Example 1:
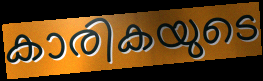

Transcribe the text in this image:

കാരികയുടെ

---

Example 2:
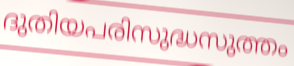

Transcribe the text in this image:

ദുതിയപരിസുദ്ധസുത്തം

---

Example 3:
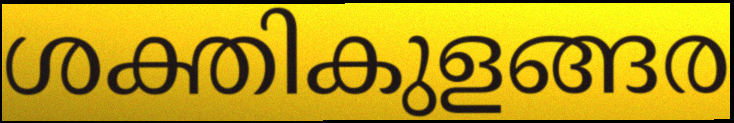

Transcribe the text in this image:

ശക്തികുളങ്ങര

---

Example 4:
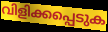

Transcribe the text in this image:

വിളിക്കപ്പെടുക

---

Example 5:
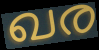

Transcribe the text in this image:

ഖര